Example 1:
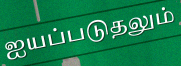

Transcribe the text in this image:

ஐயப்படுதலும்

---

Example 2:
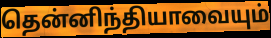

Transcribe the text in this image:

தென்னிந்தியாவையும்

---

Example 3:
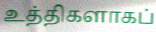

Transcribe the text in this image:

உத்திகளாகப்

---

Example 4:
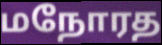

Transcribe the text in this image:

மநோரத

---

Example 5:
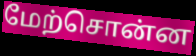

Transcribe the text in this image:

மேற்சொன்ன